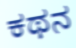
ಕಥನ